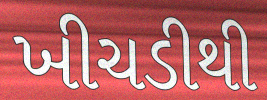
ખીચડીથી